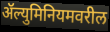
ॲल्युमिनियमवरील